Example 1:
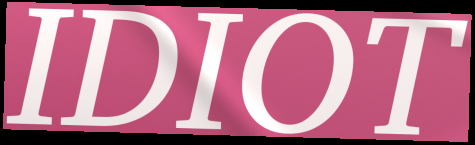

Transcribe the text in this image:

IDIOT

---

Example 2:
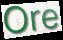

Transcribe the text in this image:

Ore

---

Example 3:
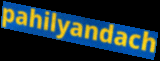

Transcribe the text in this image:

pahilyandach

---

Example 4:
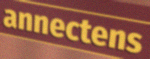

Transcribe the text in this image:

annectens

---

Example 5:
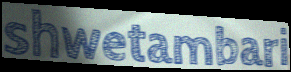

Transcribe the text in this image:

shwetambari